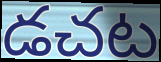
డచట